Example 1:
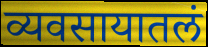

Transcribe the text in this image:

व्यवसायातलं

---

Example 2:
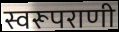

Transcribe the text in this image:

स्वरूपराणी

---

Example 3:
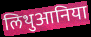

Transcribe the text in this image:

लिथुआनिया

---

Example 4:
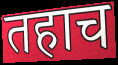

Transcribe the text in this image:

तहाच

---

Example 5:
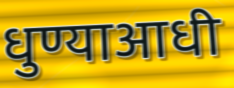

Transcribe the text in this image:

धुण्याआधी